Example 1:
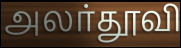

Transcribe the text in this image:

அலர்தூவி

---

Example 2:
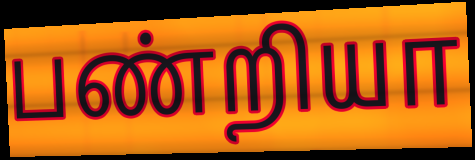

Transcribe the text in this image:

பண்றியா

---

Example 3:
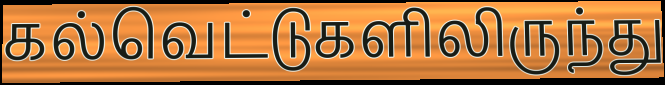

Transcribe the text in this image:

கல்வெட்டுகளிலிருந்து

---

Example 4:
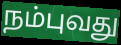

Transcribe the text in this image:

நம்புவது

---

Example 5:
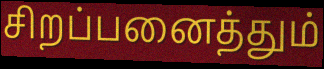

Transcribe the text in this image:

சிறப்பனைத்தும்